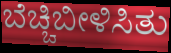
ಬೆಚ್ಚಿಬೀಳಿಸಿತು